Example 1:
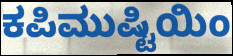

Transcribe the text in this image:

ಕಪಿಮುಷ್ಟಿಯಿಂ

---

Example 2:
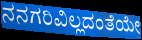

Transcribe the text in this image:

ನನಗರಿವಿಲ್ಲದಂತೆಯೇ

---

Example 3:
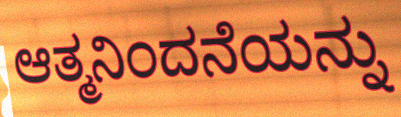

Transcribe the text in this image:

ಆತ್ಮನಿಂದನೆಯನ್ನು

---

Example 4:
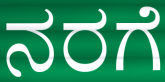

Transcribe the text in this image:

ನರಗೆ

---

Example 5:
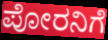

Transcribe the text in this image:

ಪೋರನಿಗೆ